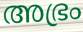
അഭ്രം